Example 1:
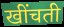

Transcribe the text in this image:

खींचती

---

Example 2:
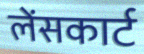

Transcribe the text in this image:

लेंसकार्ट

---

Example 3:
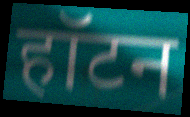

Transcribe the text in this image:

हॉटन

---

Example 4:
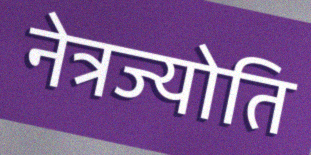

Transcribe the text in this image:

नेत्रज्योति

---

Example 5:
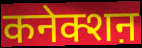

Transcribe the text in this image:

कनेक्शऩ